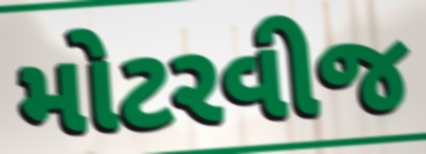
મોટરવીજ